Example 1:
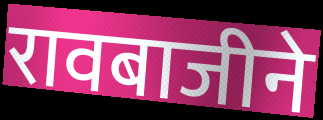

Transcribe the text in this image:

रावबाजीने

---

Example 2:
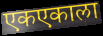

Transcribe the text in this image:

एकएकाला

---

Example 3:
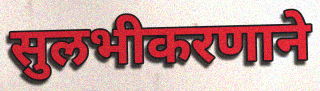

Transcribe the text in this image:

सुलभीकरणाने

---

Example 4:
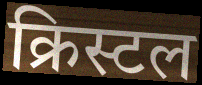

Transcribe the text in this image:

क्रिस्टल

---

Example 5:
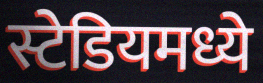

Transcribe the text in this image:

स्टेडियमध्ये